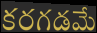
కరగడమే